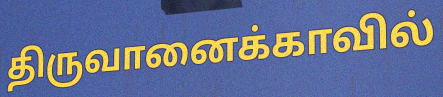
திருவானைக்காவில்